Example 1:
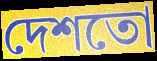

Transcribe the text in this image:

দেশতো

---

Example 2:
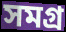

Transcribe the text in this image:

সমগ্ৰ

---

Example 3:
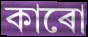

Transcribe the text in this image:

কাৰো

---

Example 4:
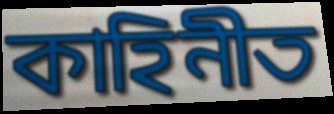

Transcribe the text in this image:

কাহিনীত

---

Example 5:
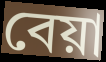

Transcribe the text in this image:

বেয়া